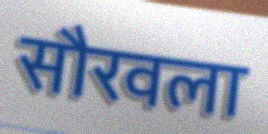
सौरवला